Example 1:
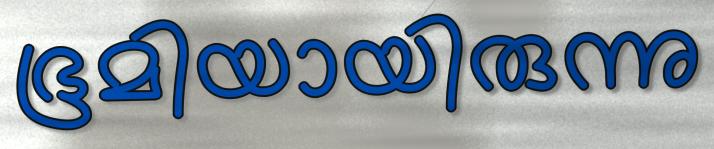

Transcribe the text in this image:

ഭൂമിയായിരുന്നു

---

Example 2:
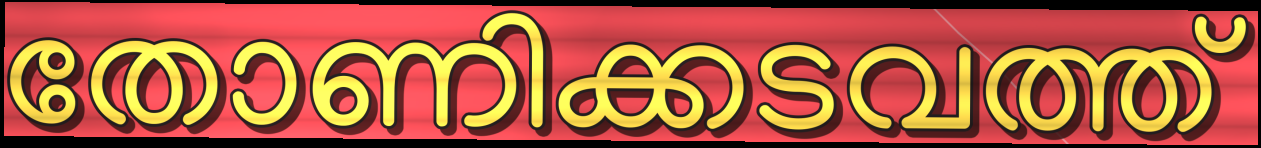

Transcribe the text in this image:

തോണിക്കടവത്ത്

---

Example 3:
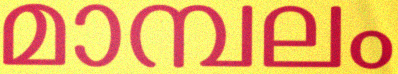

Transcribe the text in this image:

മാമ്പലം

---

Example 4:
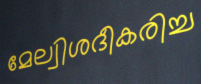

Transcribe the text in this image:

മേല്വിശദീകരിച്ച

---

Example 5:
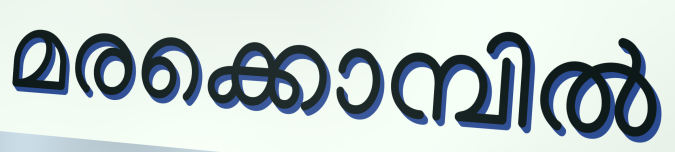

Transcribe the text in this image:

മരക്കൊമ്പിൽ